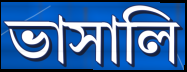
ভাসালি